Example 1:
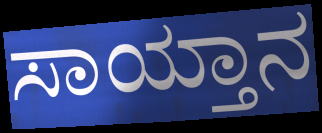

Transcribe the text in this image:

ಸಾಯ್ತಾನ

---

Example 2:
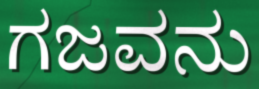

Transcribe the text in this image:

ಗಜವನು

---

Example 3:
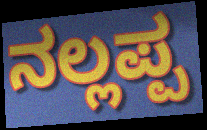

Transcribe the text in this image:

ನಲ್ಲಪ್ಪ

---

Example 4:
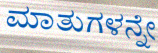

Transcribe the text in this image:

ಮಾತುಗಳನ್ನೇ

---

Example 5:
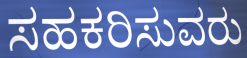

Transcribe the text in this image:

ಸಹಕರಿಸುವರು